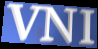
VNI